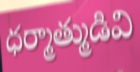
ధర్మాత్ముడివి